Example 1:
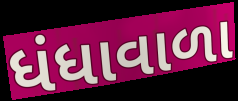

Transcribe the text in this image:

ધંધાવાળા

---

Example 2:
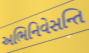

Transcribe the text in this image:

અભિનિવેસન્તિ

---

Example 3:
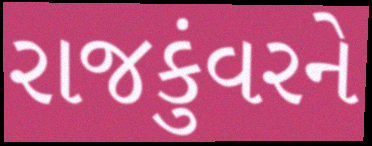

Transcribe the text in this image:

રાજકુંવરને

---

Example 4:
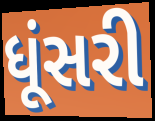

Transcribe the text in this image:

ધૂંસરી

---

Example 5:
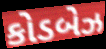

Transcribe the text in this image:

કોડબેઝ